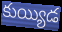
కుయ్యిడ